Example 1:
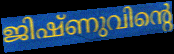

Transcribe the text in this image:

ജിഷ്ണുവിന്റെ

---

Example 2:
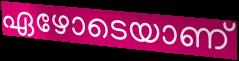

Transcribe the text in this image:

ഏഴോടെയാണ്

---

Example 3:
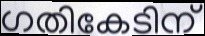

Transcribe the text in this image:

ഗതികേടിന്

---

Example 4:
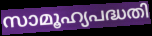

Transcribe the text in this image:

സാമൂഹ്യപദ്ധതി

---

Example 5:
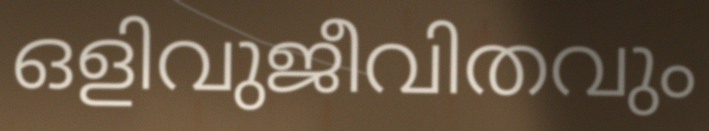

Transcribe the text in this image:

ഒളിവുജീവിതവും